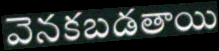
వెనకబడతాయి